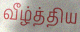
வீழ்த்திய